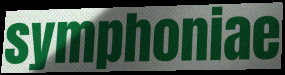
symphoniae